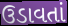
ઉડાવતાં